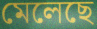
মেলেছে